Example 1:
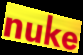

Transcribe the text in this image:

nuke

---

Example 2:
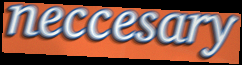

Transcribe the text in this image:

neccesary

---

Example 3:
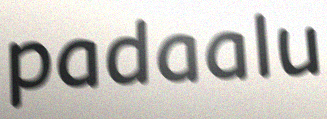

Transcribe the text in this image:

padaalu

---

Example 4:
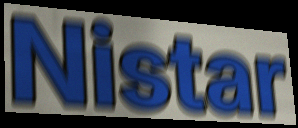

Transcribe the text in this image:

Nistar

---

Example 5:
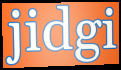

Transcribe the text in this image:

jidgi